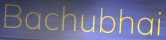
Bachubhai